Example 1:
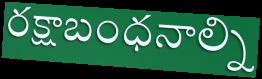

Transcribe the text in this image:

రక్షాబంధనాల్ని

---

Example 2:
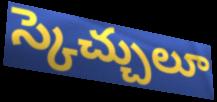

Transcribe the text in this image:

స్కెచ్చులూ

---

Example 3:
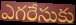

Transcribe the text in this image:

ఎగరేసుకు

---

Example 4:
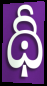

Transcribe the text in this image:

థీ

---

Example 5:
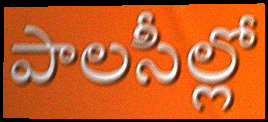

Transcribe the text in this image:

పాలసీల్లో